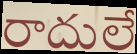
రాదులే